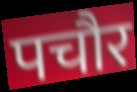
पचौर